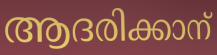
ആദരിക്കാന്